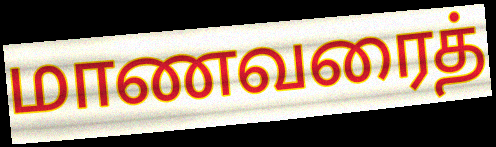
மாணவரைத்